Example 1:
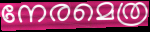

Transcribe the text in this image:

നേരമെത്ര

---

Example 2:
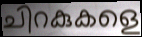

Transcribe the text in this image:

ചിറകുകളെ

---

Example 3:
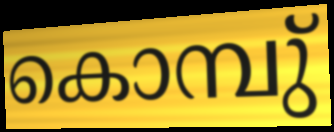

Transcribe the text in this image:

കൊമ്പു്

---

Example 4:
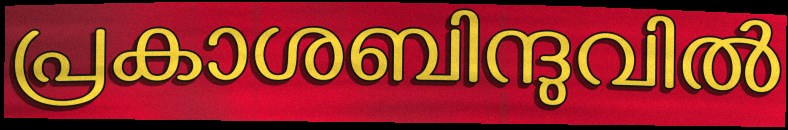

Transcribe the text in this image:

പ്രകാശബിന്ദുവിൽ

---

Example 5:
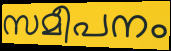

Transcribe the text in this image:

സമീപനം